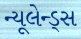
ન્યૂલેન્ડ્સ